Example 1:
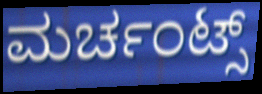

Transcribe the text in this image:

ಮರ್ಚಂಟ್ಸ್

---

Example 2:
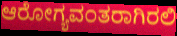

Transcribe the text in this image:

ಆರೋಗ್ಯವಂತರಾಗಿರಲಿ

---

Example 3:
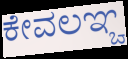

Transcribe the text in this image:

ಕೇವಲಞ್ಚ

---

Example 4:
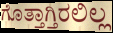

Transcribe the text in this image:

ಗೊತ್ತಾಗ್ತಿರಲಿಲ್ಲ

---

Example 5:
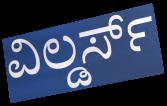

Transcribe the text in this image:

ವಿಲ್ಡರ್ಸ್